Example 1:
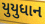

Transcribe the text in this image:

યુયુધાન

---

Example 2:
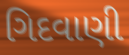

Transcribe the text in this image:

ગિદવાણી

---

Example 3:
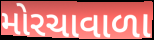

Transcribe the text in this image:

મોરચાવાળા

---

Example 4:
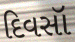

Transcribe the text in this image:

દિવસૉ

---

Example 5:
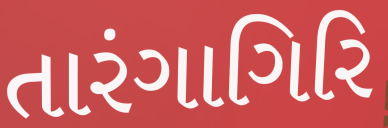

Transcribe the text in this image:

તારંગાગિરિ